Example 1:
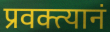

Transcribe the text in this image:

प्रवक्त्यानं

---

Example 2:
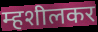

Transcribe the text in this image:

म्हशीलकर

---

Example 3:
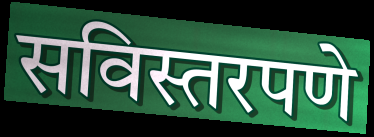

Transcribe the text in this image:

सविस्तरपणे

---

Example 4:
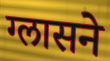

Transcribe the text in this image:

ग्लासने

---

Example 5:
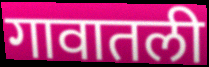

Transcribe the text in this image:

गावातली